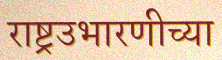
राष्ट्रउभारणीच्या